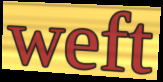
weft